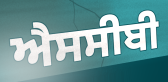
ਐਸਸੀਬੀ